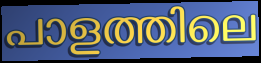
പാളത്തിലെ